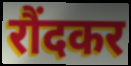
रौंदकर